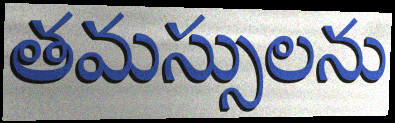
తమస్సులను